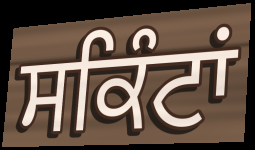
ਸਕਿੰਟਾਂ